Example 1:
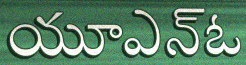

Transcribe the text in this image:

యూఎన్ఓ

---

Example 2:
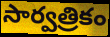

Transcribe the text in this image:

సార్వత్రికం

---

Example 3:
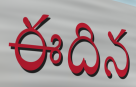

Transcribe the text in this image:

ఈదిన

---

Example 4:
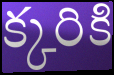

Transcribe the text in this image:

క్కరికి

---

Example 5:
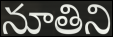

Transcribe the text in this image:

నూతిని